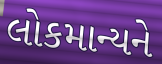
લોકમાન્યને